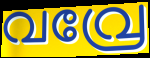
വവ്രേ